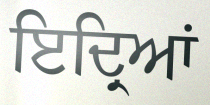
ਇਦ੍ਰਿਆਂ